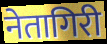
नेतागिरी